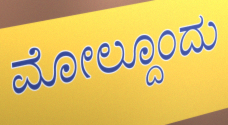
ಮೋಲ್ದೂಂದು